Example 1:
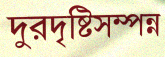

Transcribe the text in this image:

দুরদৃষ্টিসম্পন্ন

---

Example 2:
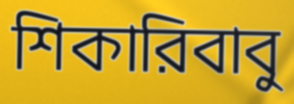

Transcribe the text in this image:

শিকারিবাবু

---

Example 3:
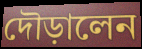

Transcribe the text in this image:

দৌড়ালেন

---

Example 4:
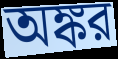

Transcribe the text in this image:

অঙ্কর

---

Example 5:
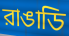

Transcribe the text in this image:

রাঙাডি